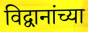
विद्वानांच्या